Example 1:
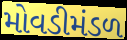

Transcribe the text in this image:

મોવડીમંડળ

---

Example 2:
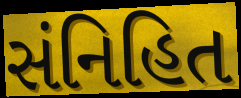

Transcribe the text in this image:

સંનિહિત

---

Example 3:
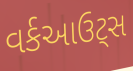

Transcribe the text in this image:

વર્કઆઉટ્સ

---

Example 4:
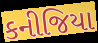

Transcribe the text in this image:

કનીજિયા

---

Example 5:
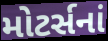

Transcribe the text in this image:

મોટર્સનાં